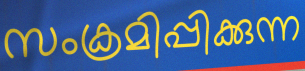
സംക്രമിപ്പിക്കുന്ന